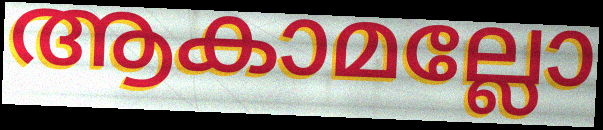
ആകാമല്ലോ